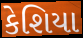
કેશિયા